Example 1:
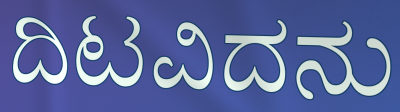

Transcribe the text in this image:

ದಿಟವಿದನು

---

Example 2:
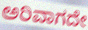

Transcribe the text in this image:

ಅರಿವಾಗದೇ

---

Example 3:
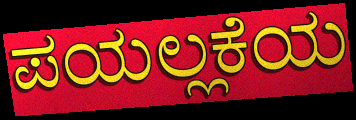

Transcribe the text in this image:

ಪಯಲ್ಲಕೆಯ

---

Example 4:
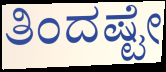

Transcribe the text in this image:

ತಿಂದಷ್ಟೇ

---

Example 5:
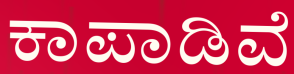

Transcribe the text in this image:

ಕಾಪಾಡಿವೆ